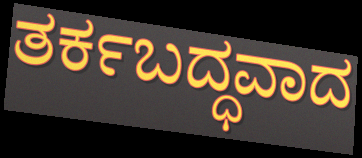
ತರ್ಕಬದ್ಧವಾದ